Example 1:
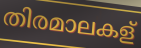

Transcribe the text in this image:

തിരമാലകള്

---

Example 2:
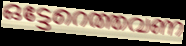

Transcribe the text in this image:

ഒട്ടേറെത്തവണ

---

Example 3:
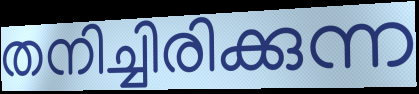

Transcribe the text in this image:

തനിച്ചിരിക്കുന്ന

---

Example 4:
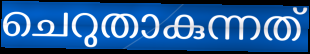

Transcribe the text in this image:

ചെറുതാകുന്നത്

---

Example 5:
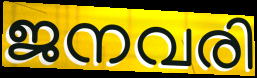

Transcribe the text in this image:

ജനവരി